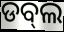
ଡବ୍‌ଲ